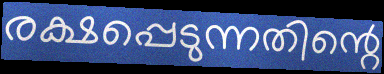
രക്ഷപ്പെടുന്നതിന്റെ